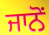
ਜਾਨੋਂ